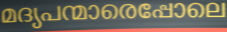
മദ്യപന്മാരെപ്പോലെ